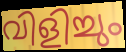
വിളിച്ചും